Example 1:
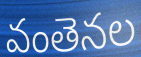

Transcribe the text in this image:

వంతెనల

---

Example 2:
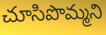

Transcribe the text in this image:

చూసిపొమ్మని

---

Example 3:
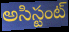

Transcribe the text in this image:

అసిస్టంట్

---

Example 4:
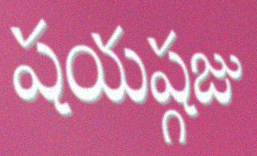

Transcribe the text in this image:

షయష్గజు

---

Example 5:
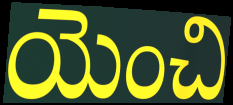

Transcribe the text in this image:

యెంచి